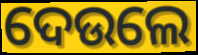
ଦେଉଲେ